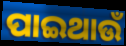
ପାଇଥାଉଁ